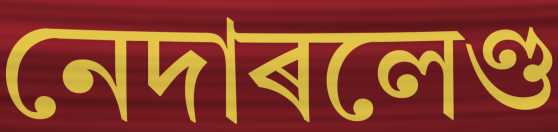
নেদাৰলেণ্ড